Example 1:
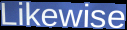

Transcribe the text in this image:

Likewise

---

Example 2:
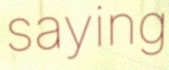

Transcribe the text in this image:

saying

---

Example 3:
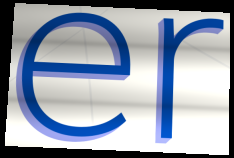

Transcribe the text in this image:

er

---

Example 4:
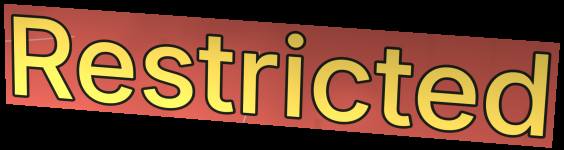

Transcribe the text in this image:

Restricted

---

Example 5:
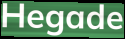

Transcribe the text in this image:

Hegade